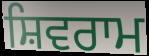
ਸ਼ਿਵਰਾਮ